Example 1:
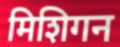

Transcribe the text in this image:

मिशिगन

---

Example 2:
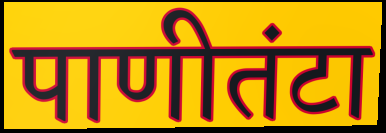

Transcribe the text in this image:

पाणीतंटा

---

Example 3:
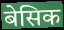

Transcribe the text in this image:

बेसिक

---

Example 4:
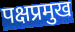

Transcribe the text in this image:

पक्षप्रमुख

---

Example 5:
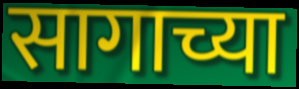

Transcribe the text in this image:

सागाच्या